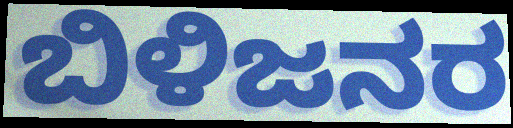
ಬಿಳಿಜನರ